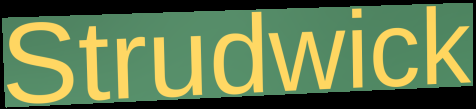
Strudwick